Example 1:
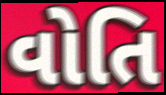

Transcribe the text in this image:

વોતિ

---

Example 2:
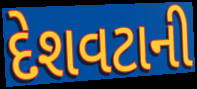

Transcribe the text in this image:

દેશવટાની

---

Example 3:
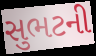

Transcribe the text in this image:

સુભટની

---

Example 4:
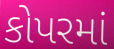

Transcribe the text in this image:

કોપરમાં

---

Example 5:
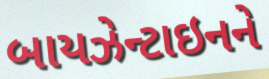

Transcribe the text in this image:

બાયઝેન્ટાઇનને